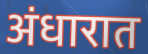
अंधारात